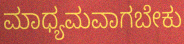
ಮಾಧ್ಯಮವಾಗಬೇಕು